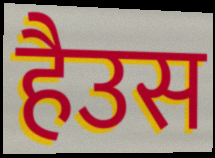
हैउस